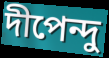
দীপেন্দু